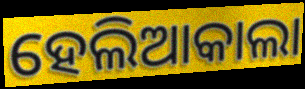
ହେଲିଆକାଲା